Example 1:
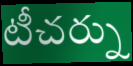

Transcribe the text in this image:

టీచర్ను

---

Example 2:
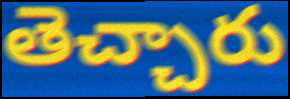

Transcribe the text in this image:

తెచ్చారు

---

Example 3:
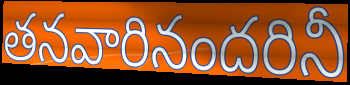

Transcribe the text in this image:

తనవారినందరినీ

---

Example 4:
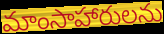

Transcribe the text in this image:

మాంసాహారులను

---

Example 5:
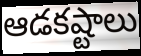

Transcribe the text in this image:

ఆడకష్టాలు